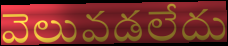
వెలువడలేదు